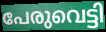
പേരുവെട്ടി